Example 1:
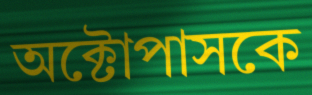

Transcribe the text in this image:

অক্টোপাসকে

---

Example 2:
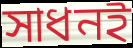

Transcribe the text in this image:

সাধনই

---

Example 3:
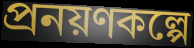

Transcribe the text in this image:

প্রনয়ণকল্পে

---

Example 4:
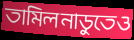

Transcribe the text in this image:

তামিলনাডুতেও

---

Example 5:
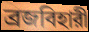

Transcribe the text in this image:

ব্রজবিহারী